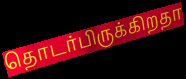
தொடர்பிருக்கிறதா